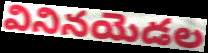
వినినయెడల